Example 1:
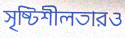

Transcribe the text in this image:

সৃষ্টিশীলতারও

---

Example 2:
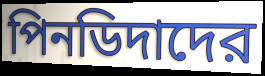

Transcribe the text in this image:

পিনডিদাদের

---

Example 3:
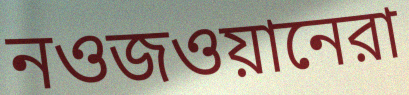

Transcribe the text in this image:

নওজওয়ানেরা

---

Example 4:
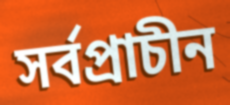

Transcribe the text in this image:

সর্বপ্রাচীন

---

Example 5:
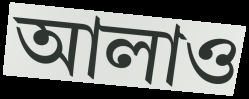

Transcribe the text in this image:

আলাও